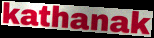
kathanak